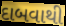
દાબવાથી